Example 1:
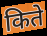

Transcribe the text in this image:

किते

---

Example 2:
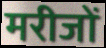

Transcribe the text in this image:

मरीजों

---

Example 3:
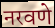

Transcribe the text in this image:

नरवणे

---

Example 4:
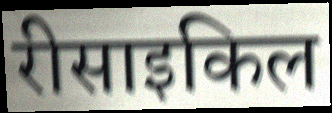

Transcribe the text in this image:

रीसाइकिल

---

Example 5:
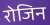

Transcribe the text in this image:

रोजिन